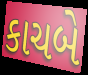
કાચબે